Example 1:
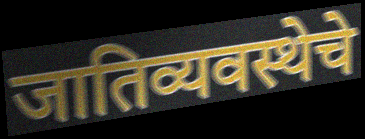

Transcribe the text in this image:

जातिव्यवस्थेचे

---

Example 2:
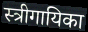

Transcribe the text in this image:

स्त्रीगायिका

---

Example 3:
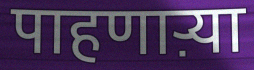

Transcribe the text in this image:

पाहणाऱ्‍या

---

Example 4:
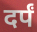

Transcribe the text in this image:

दर्पं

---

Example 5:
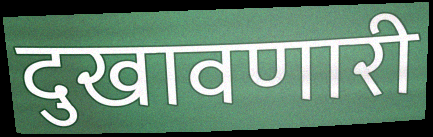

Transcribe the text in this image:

दुखावणारी